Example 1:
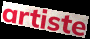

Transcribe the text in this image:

artiste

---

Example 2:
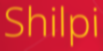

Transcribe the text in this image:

Shilpi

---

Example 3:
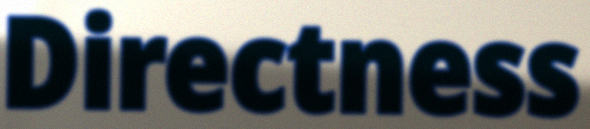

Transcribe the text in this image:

Directness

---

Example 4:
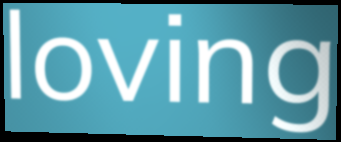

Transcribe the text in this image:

loving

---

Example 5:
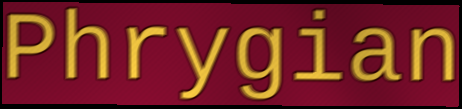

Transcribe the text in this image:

Phrygian